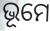
ଭୂମେ